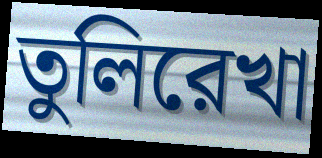
তুলিরেখা